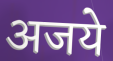
अजये